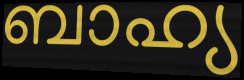
ബാഹ്യ